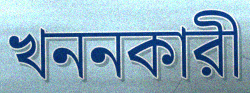
খননকারী